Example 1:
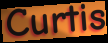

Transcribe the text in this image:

Curtis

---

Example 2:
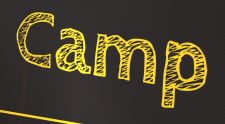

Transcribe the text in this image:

Camp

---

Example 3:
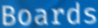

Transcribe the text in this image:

Boards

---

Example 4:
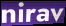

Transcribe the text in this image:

nirav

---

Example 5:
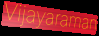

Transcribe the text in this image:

Vijayaraman